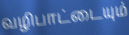
வழிபாட்டையும்